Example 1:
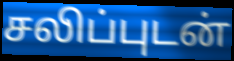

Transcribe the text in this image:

சலிப்புடன்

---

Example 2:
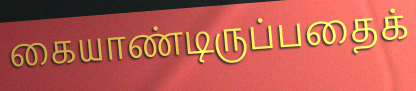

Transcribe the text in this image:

கையாண்டிருப்பதைக்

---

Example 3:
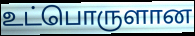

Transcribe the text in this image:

உட்பொருளான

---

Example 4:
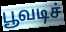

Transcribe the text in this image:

பூவடிச்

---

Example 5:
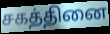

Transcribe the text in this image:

சகத்தினை